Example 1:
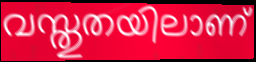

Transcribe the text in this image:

വസ്തുതയിലാണ്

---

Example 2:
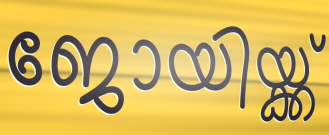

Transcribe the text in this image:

ജോയിയ്ക്ക്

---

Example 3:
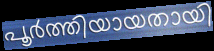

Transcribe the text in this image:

പൂർത്തിയായതായി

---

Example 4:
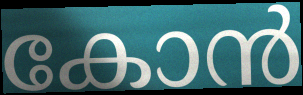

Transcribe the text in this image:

കോൻ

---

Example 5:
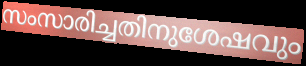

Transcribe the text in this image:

സംസാരിച്ചതിനുശേഷവും